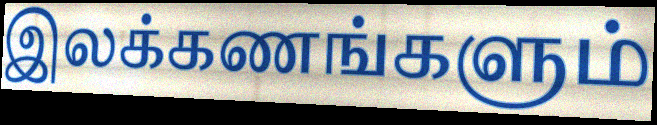
இலக்கணங்களும்